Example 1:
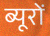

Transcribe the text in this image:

ब्यूरों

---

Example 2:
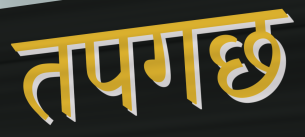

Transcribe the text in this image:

तपगछ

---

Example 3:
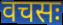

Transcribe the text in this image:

वचसः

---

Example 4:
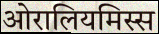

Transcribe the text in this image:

ओरालियमिस्स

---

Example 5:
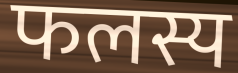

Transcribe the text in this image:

फलस्य